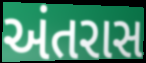
અંતરાસ